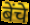
बेंचे